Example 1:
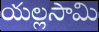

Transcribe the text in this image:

యల్లసామి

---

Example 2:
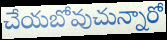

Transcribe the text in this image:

చేయబోవుచున్నారో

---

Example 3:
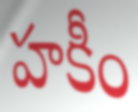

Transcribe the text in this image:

హకీం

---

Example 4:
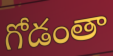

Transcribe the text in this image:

గోడంతా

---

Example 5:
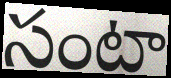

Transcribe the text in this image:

సంటా